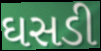
ઘસડી